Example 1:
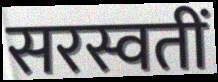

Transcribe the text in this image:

सरस्वतीं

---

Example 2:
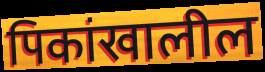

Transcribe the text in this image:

पिकांखालील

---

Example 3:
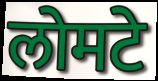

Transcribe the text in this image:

लोमटे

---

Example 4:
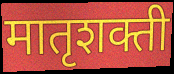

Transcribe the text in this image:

मातृशक्ती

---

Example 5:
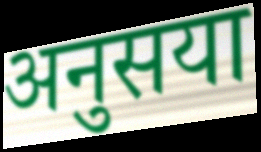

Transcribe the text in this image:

अनुसया